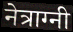
नेत्राग्नी